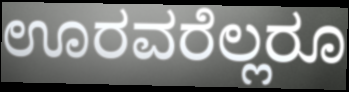
ಊರವರೆಲ್ಲರೂ